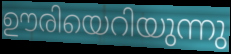
ഊരിയെറിയുന്നു